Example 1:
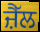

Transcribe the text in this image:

ਜ਼ੈੱਲ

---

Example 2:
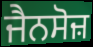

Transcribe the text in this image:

ਜੈਨਸੋਜ਼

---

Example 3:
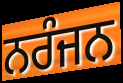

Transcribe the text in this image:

ਨਰੰਜਨ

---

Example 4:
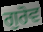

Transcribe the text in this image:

ਗੁਰੋਵ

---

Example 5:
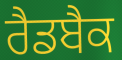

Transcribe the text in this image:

ਰੈਡਬੈਕ